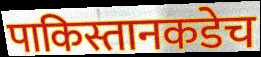
पाकिस्तानकडेच